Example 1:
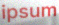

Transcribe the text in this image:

ipsum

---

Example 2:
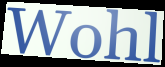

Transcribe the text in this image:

Wohl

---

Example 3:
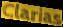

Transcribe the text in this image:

Clarias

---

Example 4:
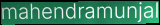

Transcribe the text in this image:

mahendramunjal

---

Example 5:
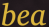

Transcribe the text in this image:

bea